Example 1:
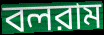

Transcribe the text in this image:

বলরাম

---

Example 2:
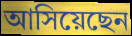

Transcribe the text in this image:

আসিয়েছেন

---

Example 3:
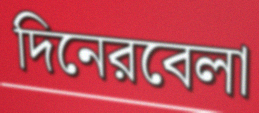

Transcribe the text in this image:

দিনেরবেলা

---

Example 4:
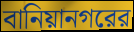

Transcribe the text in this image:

বানিয়ানগরের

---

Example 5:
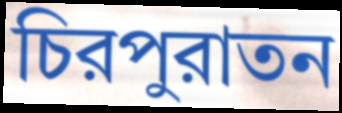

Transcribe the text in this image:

চিরপুরাতন